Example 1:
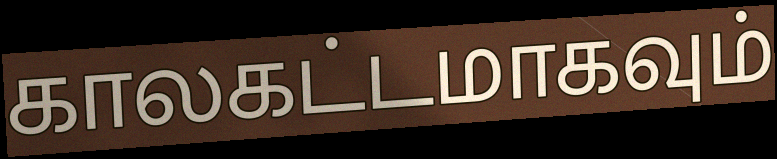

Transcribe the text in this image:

காலகட்டமாகவும்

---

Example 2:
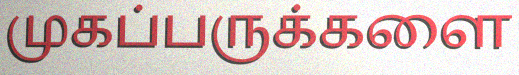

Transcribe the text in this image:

முகப்பருக்களை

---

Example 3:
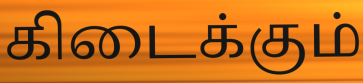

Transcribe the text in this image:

கிடைக்கும்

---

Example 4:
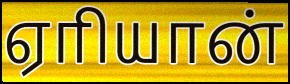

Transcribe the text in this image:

ஏரியான்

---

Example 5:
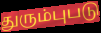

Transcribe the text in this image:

துரும்புபடு